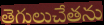
తెగులుచేతను